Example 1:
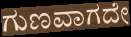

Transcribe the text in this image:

ಗುಣವಾಗದೇ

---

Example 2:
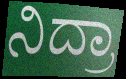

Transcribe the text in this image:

ನಿದ್ರಾ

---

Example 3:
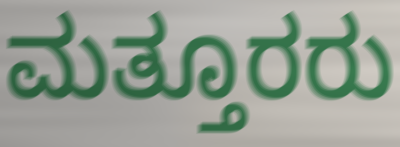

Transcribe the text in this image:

ಮತ್ತೂರರು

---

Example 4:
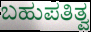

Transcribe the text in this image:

ಬಹುಪತಿತ್ವ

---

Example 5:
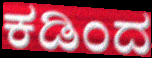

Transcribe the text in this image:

ಕಡಿಂದ